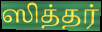
ஸித்தர்